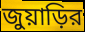
জুয়াড়ির